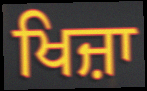
ਖਿਜ਼ਾ